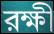
রক্ষী